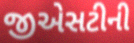
જીએસટીની